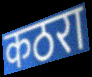
कठरा